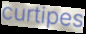
curtipes